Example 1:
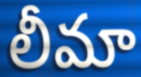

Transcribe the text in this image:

లీమా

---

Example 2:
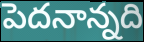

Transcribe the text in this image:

పెదనాన్నది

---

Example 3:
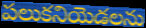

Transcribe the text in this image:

పలుకనియెడలను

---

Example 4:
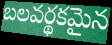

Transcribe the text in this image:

బలవర్థకమైన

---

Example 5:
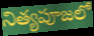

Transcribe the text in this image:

నిత్యపూజలో